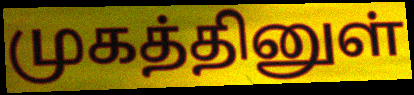
முகத்தினுள்